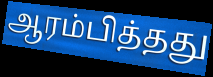
ஆரம்பித்தது